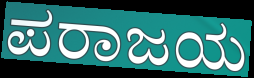
ಪರಾಜಯ